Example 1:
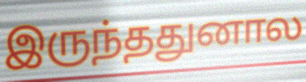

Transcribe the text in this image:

இருந்ததுனால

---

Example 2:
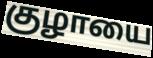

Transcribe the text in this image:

குழாயை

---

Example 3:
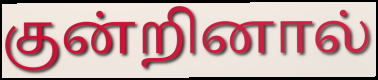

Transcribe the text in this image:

குன்றினால்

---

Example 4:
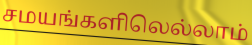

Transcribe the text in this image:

சமயங்களிலெல்லாம்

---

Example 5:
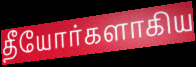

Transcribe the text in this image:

தீயோர்களாகிய